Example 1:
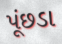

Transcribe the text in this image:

પૂંછડા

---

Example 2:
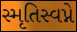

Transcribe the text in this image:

સ્મૃતિસ્વપ્ને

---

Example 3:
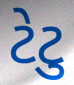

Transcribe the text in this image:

ટેટુ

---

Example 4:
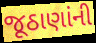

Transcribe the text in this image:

જૂઠાણાંની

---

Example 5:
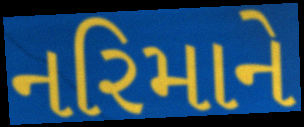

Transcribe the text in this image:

નરિમાને